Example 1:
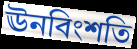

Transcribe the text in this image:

ঊনবিংশতি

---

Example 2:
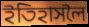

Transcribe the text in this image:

ইতিহাসলৈ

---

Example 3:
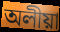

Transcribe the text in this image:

অলীয়া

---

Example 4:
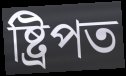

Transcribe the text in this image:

ষ্ট্ৰিপত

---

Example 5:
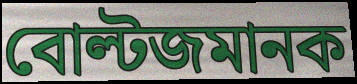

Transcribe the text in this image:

বোল্টজমানক